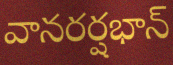
వానరర్షభాన్